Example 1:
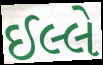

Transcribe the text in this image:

ઈલ્લે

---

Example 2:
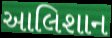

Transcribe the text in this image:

આલિશાન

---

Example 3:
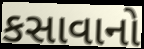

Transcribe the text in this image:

કસાવાનો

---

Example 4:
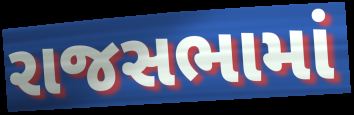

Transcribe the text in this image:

રાજસભામાં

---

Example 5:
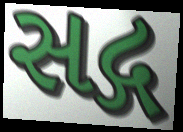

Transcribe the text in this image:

સદ્ગ